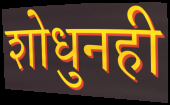
शोधुनही